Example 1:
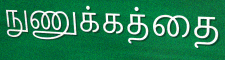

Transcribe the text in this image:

நுணுக்கத்தை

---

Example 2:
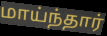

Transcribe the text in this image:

மாய்ந்தார்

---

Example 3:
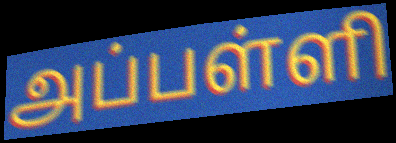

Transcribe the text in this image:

அப்பள்ளி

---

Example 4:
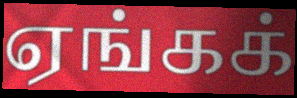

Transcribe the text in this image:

ஏங்கக்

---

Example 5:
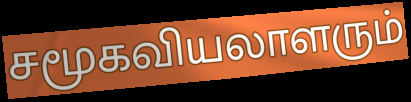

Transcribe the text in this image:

சமூகவியலாளரும்